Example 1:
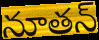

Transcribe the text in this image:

నూతన్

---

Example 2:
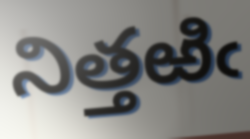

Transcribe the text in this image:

నిత్తఱిఁ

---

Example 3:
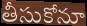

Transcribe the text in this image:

తీసుకోనూ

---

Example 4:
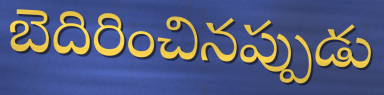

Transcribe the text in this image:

బెదిరించినప్పుడు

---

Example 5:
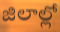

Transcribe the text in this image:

జిలాల్లో